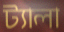
ট্যালা